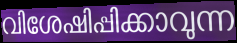
വിശേഷിപ്പിക്കാവുന്ന